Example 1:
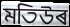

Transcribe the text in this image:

মতিউৰ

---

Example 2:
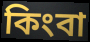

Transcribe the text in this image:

কিংবা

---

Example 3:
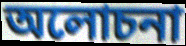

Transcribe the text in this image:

অলোচনা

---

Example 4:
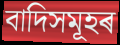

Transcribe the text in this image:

বাদিসমূহৰ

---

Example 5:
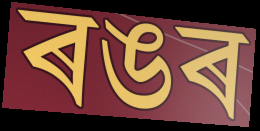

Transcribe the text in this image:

ৰঙৰ